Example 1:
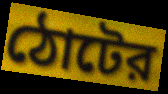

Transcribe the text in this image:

ঠোটের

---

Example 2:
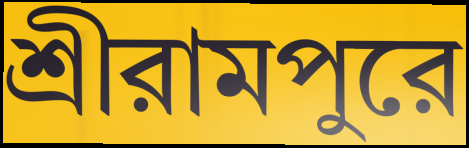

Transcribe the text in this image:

শ্রীরামপুরে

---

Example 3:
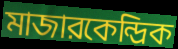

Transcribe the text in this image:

মাজারকেন্দ্রিক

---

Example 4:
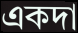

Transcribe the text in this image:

একদা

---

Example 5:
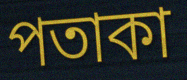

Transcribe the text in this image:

পতাকা